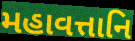
મહાવત્તાનિ